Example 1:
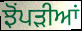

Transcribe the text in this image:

ਝੋਂਪੜੀਆਂ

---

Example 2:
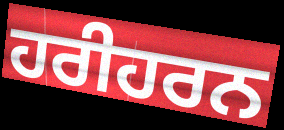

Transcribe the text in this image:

ਹਰੀਹਰਨ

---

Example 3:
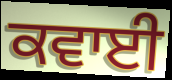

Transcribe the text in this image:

ਕਵਾਈ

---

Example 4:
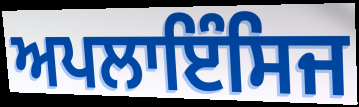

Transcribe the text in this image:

ਅਪਲਾਇੰਸਿਜ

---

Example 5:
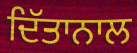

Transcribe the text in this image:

ਦਿੱਤਾਨਾਲ